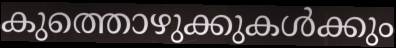
കുത്തൊഴുക്കുകൾക്കും